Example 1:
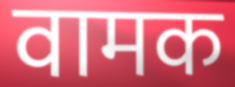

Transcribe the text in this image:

वामक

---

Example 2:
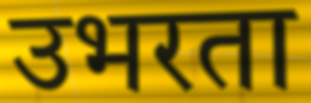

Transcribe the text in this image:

उभरता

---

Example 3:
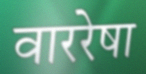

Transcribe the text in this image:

वाररेषा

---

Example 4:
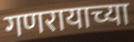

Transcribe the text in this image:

गणरायाच्या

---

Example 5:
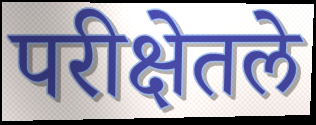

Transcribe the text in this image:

परीक्षेतले